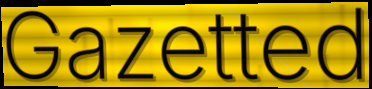
Gazetted